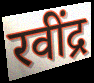
रवींद्र